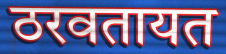
ठरवतायत